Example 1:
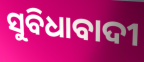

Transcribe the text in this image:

ସୁବିଧାବାଦୀ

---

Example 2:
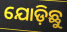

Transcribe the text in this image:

ଯୋଡ଼ିଛୁ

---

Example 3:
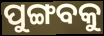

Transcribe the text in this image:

ପୁଙ୍ଗବକୁ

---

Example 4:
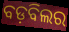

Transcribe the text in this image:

ବଡ଼ବିଲର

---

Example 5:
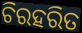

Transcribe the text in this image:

ଚିରହରିତ